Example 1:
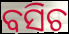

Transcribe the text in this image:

ବସିଚ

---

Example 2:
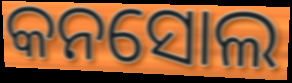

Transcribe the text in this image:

କନସୋଲ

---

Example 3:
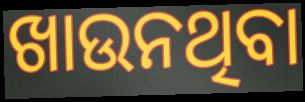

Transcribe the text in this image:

ଖାଉନଥିବା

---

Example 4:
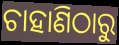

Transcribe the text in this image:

ଚାହାଣିଠାରୁ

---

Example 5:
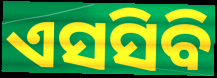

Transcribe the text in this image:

ଏସସିବି